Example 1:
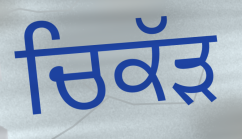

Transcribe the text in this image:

ਚਿਕੱੜ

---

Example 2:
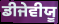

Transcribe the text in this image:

ਡੀਜੇਵੀਯੂ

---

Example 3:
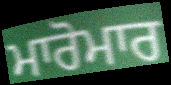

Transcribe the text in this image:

ਮਾਰੋਮਾਰ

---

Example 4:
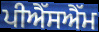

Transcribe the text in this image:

ਪੀਐੱਸਐੱਮ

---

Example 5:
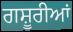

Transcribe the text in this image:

ਗਸ਼ੂਰੀਆਂ